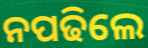
ନପଢିଲେ